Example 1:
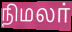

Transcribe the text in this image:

நிமலர்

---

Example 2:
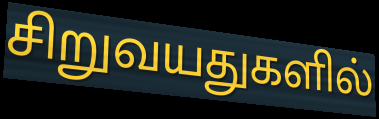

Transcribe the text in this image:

சிறுவயதுகளில்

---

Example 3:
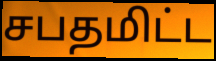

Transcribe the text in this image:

சபதமிட்ட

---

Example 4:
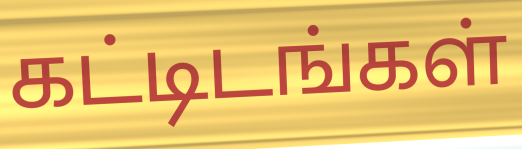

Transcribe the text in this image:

கட்டிடங்கள்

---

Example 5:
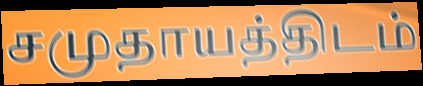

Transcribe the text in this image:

சமுதாயத்திடம்